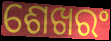
ଶେଖରଂ